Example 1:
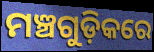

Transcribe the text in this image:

ମଞ୍ଚଗୁଡ଼ିକରେ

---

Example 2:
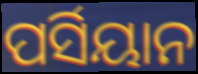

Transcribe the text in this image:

ପର୍ସିୟାନ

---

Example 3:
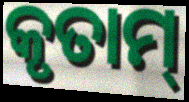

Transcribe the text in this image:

କୃତାମ୍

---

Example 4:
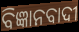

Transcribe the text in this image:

ବିଜ୍ଞାନବାଦୀ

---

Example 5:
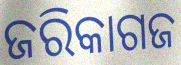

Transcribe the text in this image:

ଜରିକାଗଜ